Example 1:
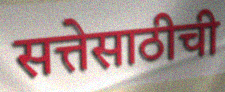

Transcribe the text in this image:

सत्तेसाठीची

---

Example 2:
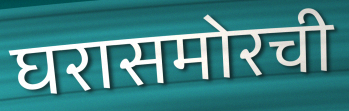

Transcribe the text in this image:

घरासमोरची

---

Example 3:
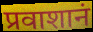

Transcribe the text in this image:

प्रवाशानं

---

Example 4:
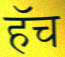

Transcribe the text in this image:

हॅच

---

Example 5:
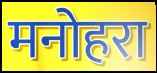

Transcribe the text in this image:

मनोहरा